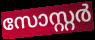
സോസ്റ്റർ